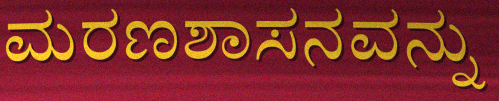
ಮರಣಶಾಸನವನ್ನು